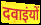
दवाइंयों